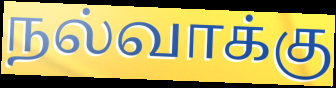
நல்வாக்கு